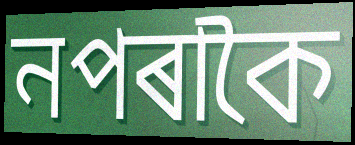
নপৰাকৈ